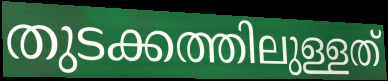
തുടക്കത്തിലുള്ളത്